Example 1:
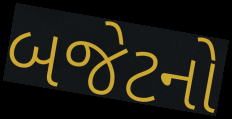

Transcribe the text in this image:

બજેટનો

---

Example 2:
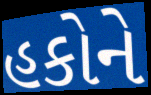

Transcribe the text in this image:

હકોને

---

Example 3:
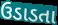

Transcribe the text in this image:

ઉડાડતા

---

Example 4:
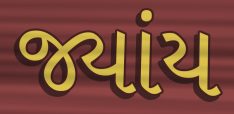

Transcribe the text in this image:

જ્યાંય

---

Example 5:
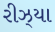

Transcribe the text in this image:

રીઝ્યા